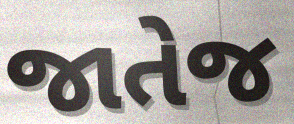
જાતેજ